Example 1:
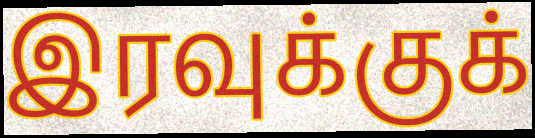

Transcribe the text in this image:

இரவுக்குக்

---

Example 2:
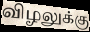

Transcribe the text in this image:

விழலுக்கு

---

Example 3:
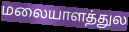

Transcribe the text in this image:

மலையாளத்துல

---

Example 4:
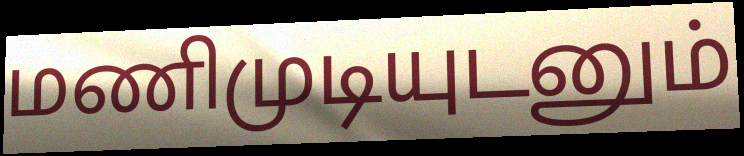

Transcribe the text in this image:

மணிமுடியுடனும்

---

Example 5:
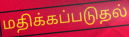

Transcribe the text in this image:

மதிக்கப்படுதல்